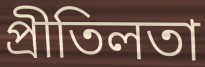
প্ৰীতিলতা